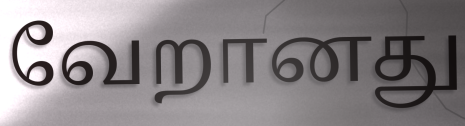
வேறானது